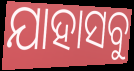
ଯାହାସବୁ